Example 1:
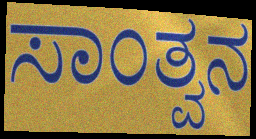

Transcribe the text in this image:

ಸಾಂತ್ವನ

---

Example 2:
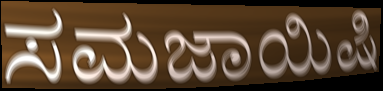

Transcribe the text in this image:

ಸಮಜಾಯಿಷಿ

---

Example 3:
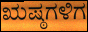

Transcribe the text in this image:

ಋಷ್ಠಗಳಿಗ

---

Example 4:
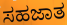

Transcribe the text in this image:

ಸಹಜಾತ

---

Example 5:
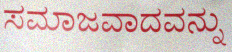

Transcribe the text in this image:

ಸಮಾಜವಾದವನ್ನು